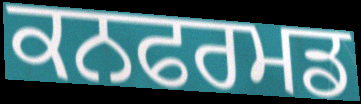
ਕਨਫਰਮਡ